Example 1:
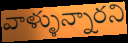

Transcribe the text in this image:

వాళ్ళున్నారని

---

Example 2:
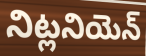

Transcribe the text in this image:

నిట్లనియెన్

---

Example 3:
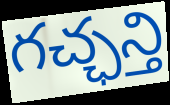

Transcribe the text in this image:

గచ్ఛన్తి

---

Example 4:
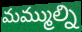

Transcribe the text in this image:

మమ్ముల్ని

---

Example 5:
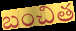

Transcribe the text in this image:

బంచిత